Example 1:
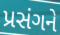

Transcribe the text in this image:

પ્રસંગને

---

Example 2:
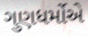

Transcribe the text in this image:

ગુણધર્મોએ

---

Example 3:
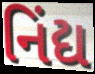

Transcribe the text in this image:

નિંદ્ય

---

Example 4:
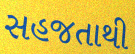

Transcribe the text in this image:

સહજતાથી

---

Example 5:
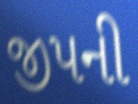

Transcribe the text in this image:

જીપની